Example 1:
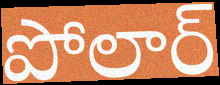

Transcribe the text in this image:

పోలార్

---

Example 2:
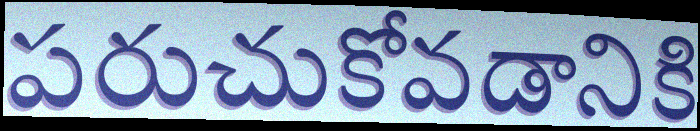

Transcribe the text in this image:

పరుచుకోవడానికి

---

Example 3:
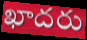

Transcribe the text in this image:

ఖాదరు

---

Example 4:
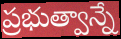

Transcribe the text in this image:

ప్రభుత్వాన్నే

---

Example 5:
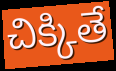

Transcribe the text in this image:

చిక్కితే